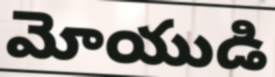
మోయుడి